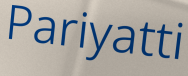
Pariyatti